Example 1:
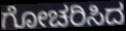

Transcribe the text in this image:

ಗೋಚರಿಸಿದ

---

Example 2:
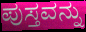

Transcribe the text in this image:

ಪುಸ್ತವನ್ನು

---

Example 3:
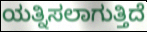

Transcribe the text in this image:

ಯತ್ನಿಸಲಾಗುತ್ತಿದೆ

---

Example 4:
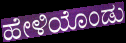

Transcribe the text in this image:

ಹೇಳಿಯೊಂಡು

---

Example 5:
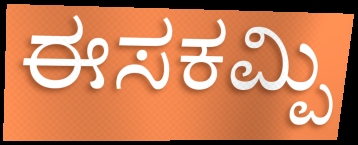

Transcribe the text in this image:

ಈಸಕಮ್ಪಿ